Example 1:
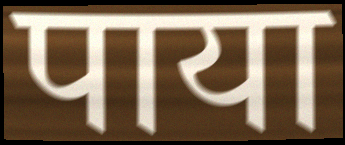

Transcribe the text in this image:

पाया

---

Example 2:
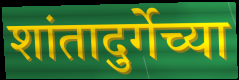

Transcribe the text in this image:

शांतादुर्गेच्या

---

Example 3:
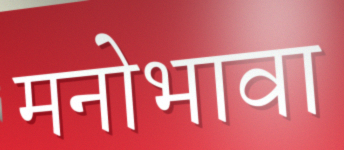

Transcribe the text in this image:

मनोभावा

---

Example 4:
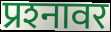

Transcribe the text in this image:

प्रश्‍नावर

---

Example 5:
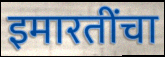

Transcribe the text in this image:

इमारतींचा